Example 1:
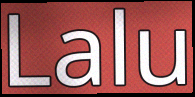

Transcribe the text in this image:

Lalu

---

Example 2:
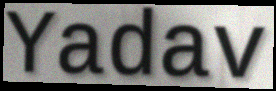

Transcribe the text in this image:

Yadav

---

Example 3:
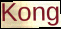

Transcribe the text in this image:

Kong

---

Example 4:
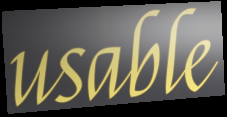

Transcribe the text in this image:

usable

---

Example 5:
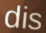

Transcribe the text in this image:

dis